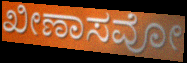
ಖೀಣಾಸವೋ